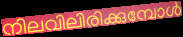
നിലവിലിരിക്കുമ്പോൾ